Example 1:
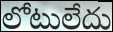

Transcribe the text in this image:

లోటులేదు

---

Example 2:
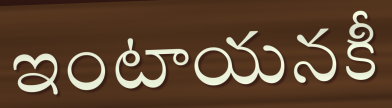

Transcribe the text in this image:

ఇంటాయనకీ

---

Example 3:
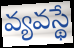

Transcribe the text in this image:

వ్యవస్థే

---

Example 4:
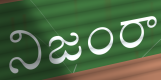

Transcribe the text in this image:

నిజంరా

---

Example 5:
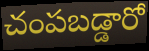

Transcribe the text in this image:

చంపబడ్డారో